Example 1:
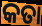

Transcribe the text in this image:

କତା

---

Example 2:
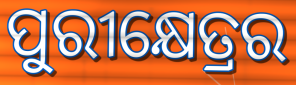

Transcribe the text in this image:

ପୁରୀକ୍ଷେତ୍ରର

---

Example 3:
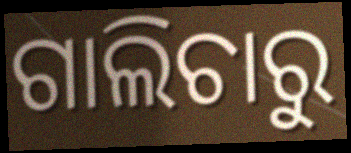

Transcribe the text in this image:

ଗାଲିଚାରୁ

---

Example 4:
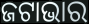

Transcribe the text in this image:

ଜଟାଭାର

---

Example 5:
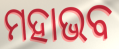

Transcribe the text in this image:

ମହାଭବ